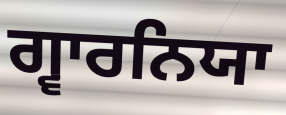
ਗ੍ਵਾਰਨਿਯਾ